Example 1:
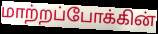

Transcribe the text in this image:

மாற்றப்போக்கின்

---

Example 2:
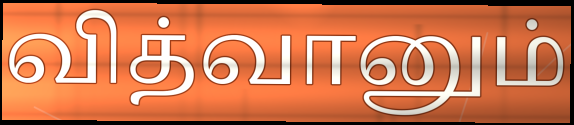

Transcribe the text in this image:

வித்வானும்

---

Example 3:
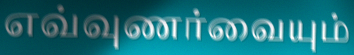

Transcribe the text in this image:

எவ்வுணர்வையும்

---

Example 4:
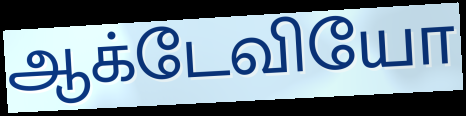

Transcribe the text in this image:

ஆக்டேவியோ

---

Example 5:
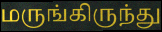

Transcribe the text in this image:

மருங்கிருந்து